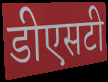
डीएसटी